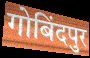
गोबिंदपुर